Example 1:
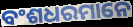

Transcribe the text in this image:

ବଂଶଧରମାନେ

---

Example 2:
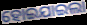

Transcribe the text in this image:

ହୋଇଯାଇଲା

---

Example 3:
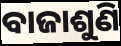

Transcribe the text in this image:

ବାଜାଶୁଣି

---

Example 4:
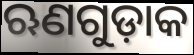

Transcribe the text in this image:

ଋଣଗୁଡ଼ାକ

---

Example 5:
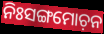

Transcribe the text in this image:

ନିଃସଙ୍ଗମୋଚ଼ନ